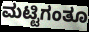
ಮಟ್ಟಿಗಂತೂ